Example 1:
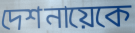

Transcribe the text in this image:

দেশনায়েকে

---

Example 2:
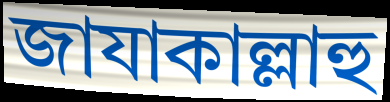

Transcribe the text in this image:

জাযাকাল্লাহু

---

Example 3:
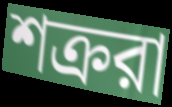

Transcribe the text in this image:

শক্ররা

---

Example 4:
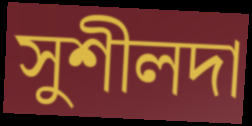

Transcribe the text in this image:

সুশীলদা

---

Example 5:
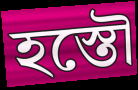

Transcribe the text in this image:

হস্তৌ